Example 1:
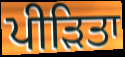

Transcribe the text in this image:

ਪੀੜਿਤਾ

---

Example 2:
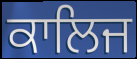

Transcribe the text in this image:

ਕਾਲਿਜ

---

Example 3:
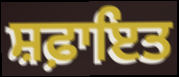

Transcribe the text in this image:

ਸ਼ਫ਼ਾਇਤ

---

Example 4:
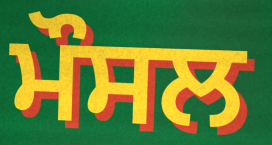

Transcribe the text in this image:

ਮੌਸਲ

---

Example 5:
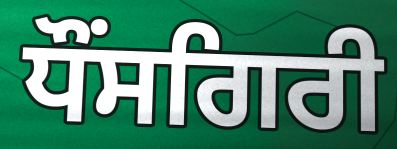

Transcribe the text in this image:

ਧੌਂਸਗਿਰੀ